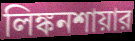
লিঙ্কনশায়ার